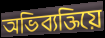
অভিব্যক্তিয়ে